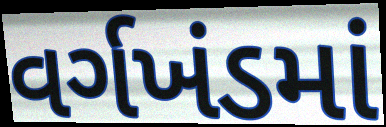
વર્ગખંડમાં